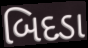
બિદડા